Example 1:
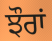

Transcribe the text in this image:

ਝੌਰਾਂ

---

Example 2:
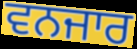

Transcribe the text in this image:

ਵਨਜਾਰ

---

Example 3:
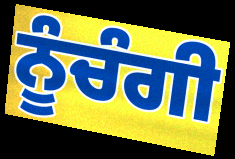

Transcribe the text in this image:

ਨੂੰਚੰਗੀ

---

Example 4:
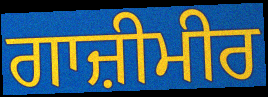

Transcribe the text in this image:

ਗਾਜ਼ੀਮੀਰ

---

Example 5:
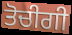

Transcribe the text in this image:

ਤੋਚੀਗੀ